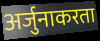
अर्जुनाकरता